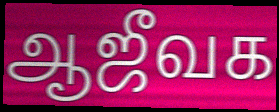
ஆஜீவக